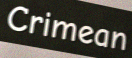
Crimean